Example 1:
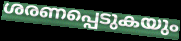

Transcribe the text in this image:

ശരണപ്പെടുകയും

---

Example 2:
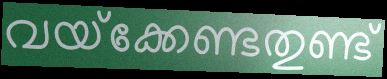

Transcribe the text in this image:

വയ്‌ക്കേണ്ടതുണ്ട്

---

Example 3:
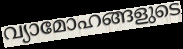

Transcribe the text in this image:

വ്യാമോഹങ്ങളുടെ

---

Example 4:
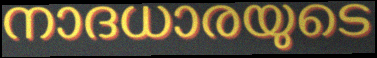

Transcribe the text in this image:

നാദധാരയുടെ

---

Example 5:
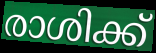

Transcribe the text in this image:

രാശിക്ക്